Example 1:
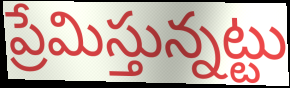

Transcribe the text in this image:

ప్రేమిస్తున్నట్టు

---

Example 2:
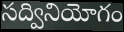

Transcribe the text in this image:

సద్వినియోగం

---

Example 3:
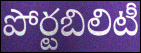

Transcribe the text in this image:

పోర్టబిలిటీ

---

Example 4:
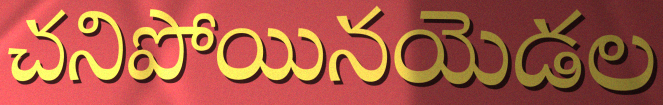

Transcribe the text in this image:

చనిపోయినయెడల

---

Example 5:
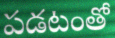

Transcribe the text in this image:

పడటంతో